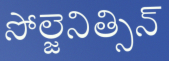
సోల్జెనిత్సిన్